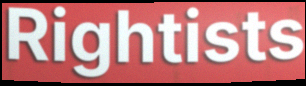
Rightists